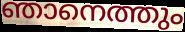
ഞാനെത്തും